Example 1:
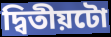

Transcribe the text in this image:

দ্বিতীয়টো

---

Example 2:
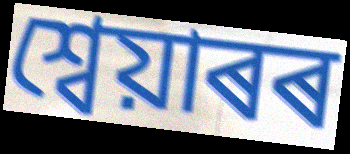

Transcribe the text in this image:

শ্বেয়াৰৰ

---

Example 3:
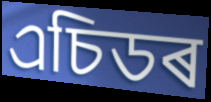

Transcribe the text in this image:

এচিডৰ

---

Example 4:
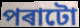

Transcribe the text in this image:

পৰাটো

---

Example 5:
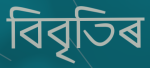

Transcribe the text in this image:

বিবৃতিৰ